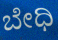
ಬೇಧಿ